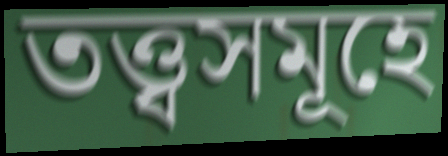
তত্ত্বসমূহে